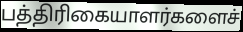
பத்திரிகையாளர்களைச்